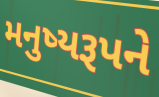
મનુષ્યરૂપને